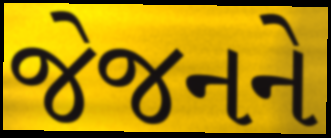
જેજનને